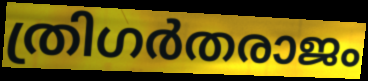
ത്രിഗർതരാജം